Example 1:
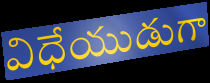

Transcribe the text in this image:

విధేయుడుగా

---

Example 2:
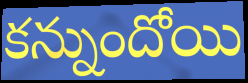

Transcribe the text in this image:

కన్నుందోయి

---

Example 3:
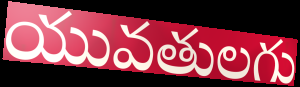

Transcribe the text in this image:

యువతులగు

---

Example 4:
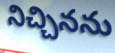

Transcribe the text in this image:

నిచ్చినను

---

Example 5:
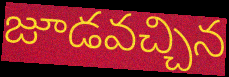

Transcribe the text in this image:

జూడవచ్చిన